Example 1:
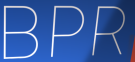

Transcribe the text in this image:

BPR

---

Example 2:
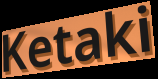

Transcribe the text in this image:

Ketaki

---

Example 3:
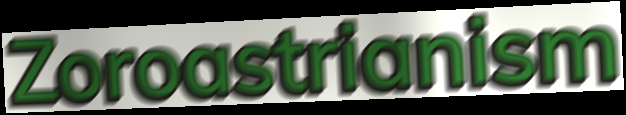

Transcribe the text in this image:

Zoroastrianism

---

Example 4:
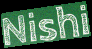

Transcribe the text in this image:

Nishi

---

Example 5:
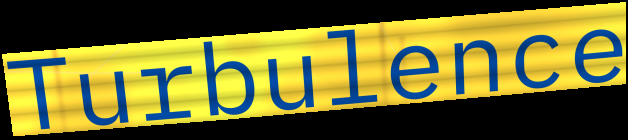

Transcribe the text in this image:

Turbulence